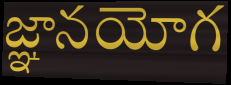
జ్ఞానయోగ